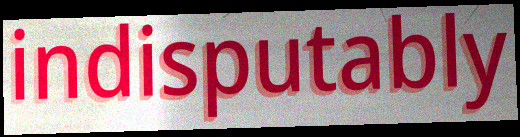
indisputably